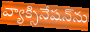
వ్యాక్సినేషన్‌ను